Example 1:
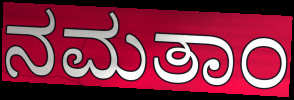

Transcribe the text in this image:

ನಮತಾಂ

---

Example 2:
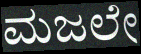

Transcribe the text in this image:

ಮಜಲೇ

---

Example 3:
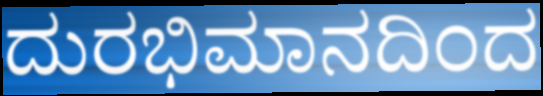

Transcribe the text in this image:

ದುರಭಿಮಾನದಿಂದ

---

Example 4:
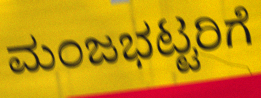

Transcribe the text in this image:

ಮಂಜಭಟ್ಟರಿಗೆ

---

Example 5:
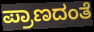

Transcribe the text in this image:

ಪ್ರಾಣದಂತೆ